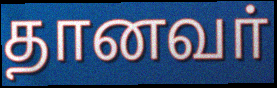
தானவர்